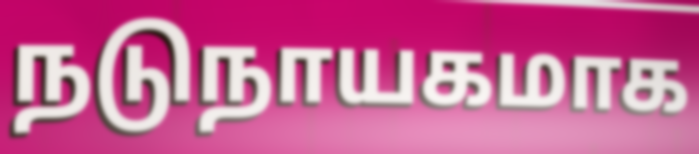
நடுநாயகமாக